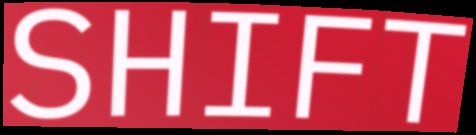
SHIFT